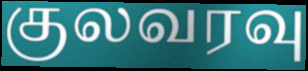
குலவரவு